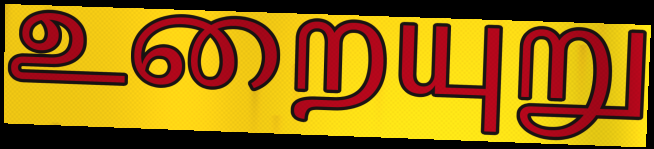
உறையுறு